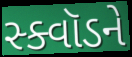
સ્ક્વૉડને